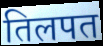
तिलपत